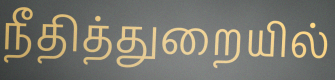
நீதித்துறையில்